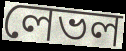
লেভল